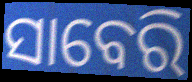
ସାବେରି